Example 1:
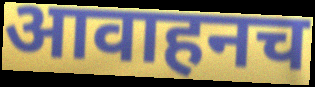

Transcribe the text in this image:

आवाहनच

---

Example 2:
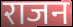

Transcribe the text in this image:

राजन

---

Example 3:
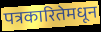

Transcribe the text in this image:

पत्रकारितेमधून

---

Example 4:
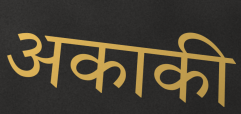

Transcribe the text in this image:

अकाकी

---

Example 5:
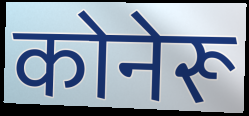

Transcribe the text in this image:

कोनेरू